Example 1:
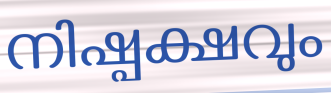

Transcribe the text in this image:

നിഷ്പക്ഷവും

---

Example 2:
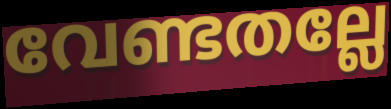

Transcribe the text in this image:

വേണ്ടതല്ലേ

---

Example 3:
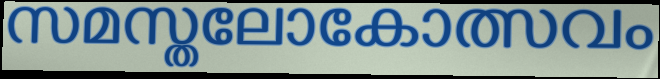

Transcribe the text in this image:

സമസ്തലോകോത്സവം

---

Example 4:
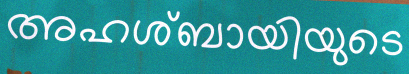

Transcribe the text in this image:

അഹശ്ബായിയുടെ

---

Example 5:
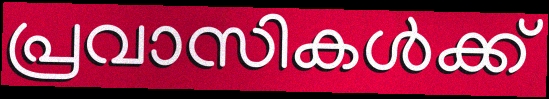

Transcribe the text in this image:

പ്രവാസികൾക്ക്